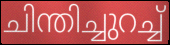
ചിന്തിച്ചുറച്ച്